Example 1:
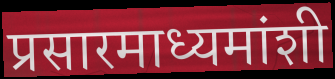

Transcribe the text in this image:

प्रसारमाध्यमांशी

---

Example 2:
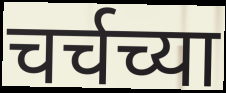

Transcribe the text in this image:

चर्चच्या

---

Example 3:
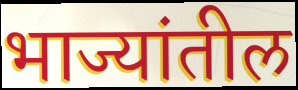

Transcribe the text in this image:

भाज्यांतील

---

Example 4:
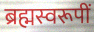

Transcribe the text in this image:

ब्रह्मस्वरूपीं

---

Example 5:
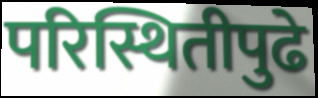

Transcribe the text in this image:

परिस्थितीपुढे